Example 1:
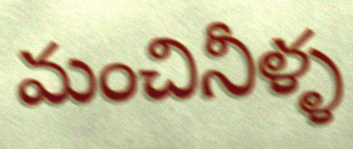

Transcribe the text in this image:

మంచినీళ్ళ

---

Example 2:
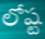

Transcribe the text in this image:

లోష్ట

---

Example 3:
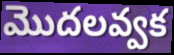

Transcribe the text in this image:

మొదలవ్వక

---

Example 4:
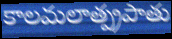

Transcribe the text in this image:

కాలమలాత్ప్రపాతు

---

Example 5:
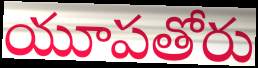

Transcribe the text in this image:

యూపతోరు